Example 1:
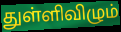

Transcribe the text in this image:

துள்ளிவிழும்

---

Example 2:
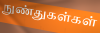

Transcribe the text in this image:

நுண்துகள்கள்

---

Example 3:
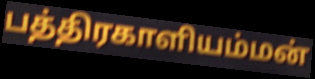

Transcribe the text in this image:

பத்திரகாளியம்மன்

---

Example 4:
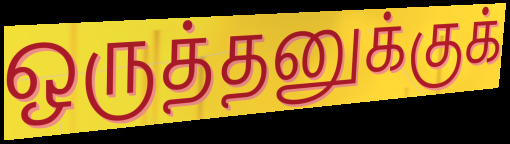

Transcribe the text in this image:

ஒருத்தனுக்குக்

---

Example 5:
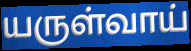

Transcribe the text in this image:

யருள்வாய்